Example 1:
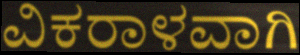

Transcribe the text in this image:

ವಿಕರಾಳವಾಗಿ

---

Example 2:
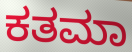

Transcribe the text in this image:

ಕತಮಾ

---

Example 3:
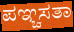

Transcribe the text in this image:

ಪಞ್ಚಸತಾ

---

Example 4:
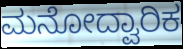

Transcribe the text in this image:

ಮನೋದ್ವಾರಿಕ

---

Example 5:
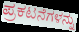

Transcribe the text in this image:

ಪ್ರಕಟನೆಗಳನ್ನು